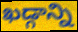
ఖడ్గాన్ని